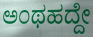
ಅಂಥಹದ್ದೇ